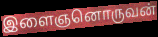
இளைஞனொருவன்